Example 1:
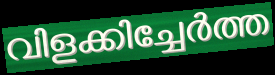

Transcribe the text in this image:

വിളക്കിച്ചേർത്ത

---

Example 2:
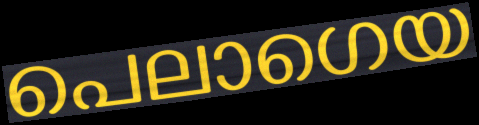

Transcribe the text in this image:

പെലാഗെയ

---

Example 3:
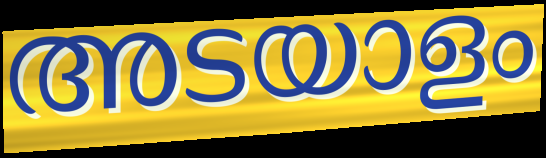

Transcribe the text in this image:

അടയാളം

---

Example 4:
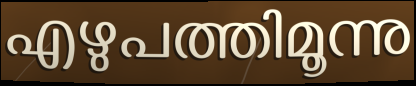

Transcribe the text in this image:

എഴുപത്തിമൂന്നു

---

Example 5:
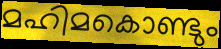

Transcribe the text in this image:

മഹിമകൊണ്ടും